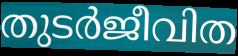
തുടർജീവിത